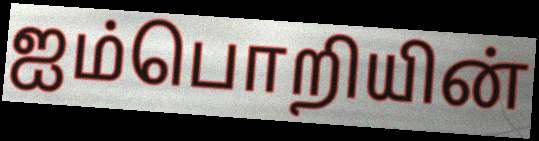
ஐம்பொறியின்